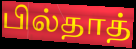
பில்தாத்